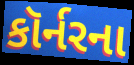
કૉર્નરના